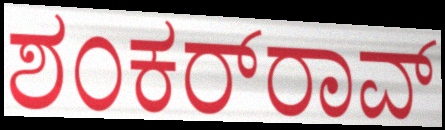
ಶಂಕರ್‌ರಾವ್